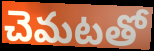
చెమటతో